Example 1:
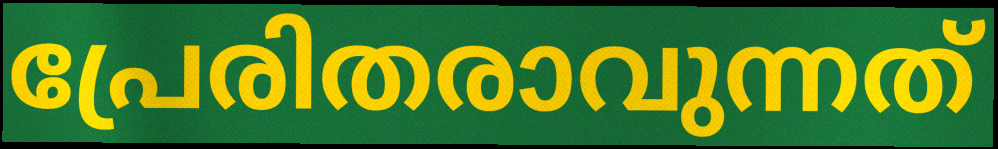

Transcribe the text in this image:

പ്രേരിതരാവുന്നത്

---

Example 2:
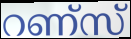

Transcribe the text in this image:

റണ്സ്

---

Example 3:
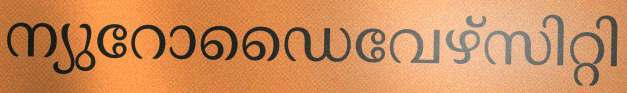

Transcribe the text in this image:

ന്യുറോഡൈവേഴ്സിറ്റി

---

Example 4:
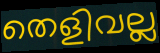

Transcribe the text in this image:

തെളിവല്ല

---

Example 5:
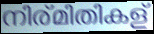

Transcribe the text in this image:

നിര്മിതികള്